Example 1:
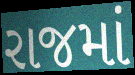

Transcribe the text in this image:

રાજમાં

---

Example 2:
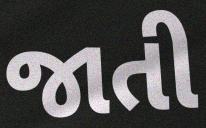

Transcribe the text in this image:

જાતી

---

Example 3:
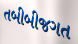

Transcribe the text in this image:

તબીબીજગત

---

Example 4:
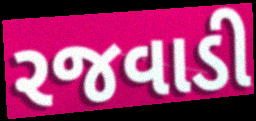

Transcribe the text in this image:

રજવાડી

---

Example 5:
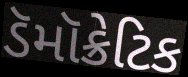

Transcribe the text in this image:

ડૅમૉક્રેટિક